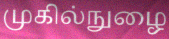
முகில்நுழை